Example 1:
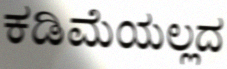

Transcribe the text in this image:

ಕಡಿಮೆಯಲ್ಲದ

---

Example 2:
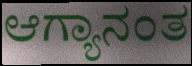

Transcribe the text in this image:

ಆಗ್ಯಾನಂತ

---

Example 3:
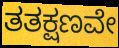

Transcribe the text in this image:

ತತಕ್ಷಣವೇ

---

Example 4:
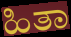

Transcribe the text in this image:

ಹಿತಾ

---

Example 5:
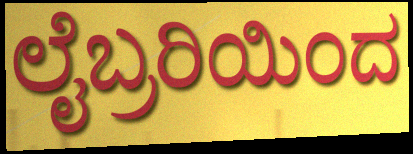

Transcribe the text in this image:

ಲೈಬ್ರರಿಯಿಂದ